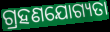
ଗ୍ରହଣଯୋଗ୍ୟତା